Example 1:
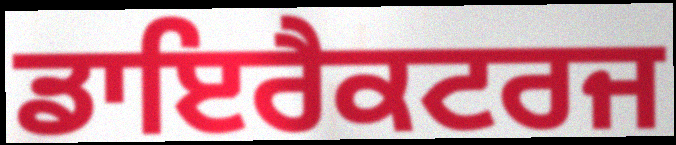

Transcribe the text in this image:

ਡਾਇਰੈਕਟਰਜ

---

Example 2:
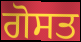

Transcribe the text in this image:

ਗੋਸਤ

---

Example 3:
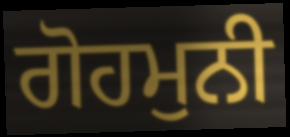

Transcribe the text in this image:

ਗੋਹਮੁਨੀ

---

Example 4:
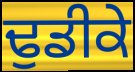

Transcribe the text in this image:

ਢੁਡੀਕੇ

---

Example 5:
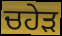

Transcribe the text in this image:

ਚਹੇੜ